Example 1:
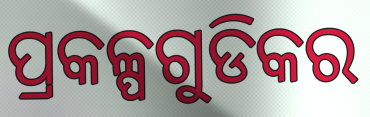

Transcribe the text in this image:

ପ୍ରକଳ୍ପଗୁଡିକର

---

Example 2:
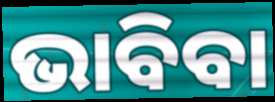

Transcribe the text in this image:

ଭାବିବା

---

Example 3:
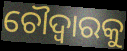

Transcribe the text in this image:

ଚୌଦ୍ୱାରକୁ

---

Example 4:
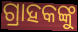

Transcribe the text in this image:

ଗ୍ରାହକଙ୍କୁ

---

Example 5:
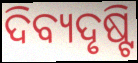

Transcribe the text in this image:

ଦିବ୍ୟଦୃଷ୍ଟି